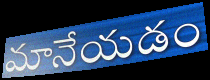
మానేయడం